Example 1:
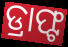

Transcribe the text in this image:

ଡ୍ରାଫ୍ଟ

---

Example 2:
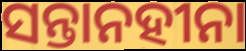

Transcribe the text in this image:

ସନ୍ତାନହୀନା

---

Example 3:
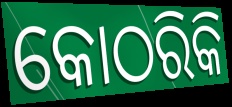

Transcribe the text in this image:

କୋଠରିକି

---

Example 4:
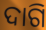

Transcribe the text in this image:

ଦାଗି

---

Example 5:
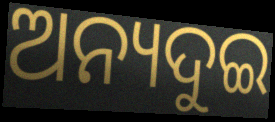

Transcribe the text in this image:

ଅନ୍ୟଦୁଇ